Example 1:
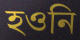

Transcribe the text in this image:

হওনি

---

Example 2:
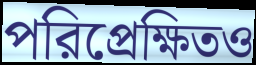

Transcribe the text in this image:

পরিপ্রেক্ষিতও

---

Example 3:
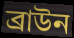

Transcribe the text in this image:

ব্রাউন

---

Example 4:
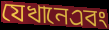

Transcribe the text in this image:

যেখানেএবং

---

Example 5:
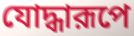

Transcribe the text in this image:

যোদ্ধারূপে